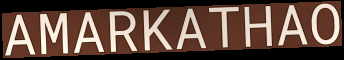
AMARKATHAO